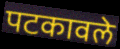
पटकावले